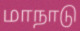
மாநாடு